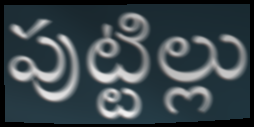
పుట్టిల్లు